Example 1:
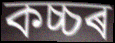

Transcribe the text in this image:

কচ্চৰ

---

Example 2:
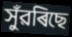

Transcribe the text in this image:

সুঁৱৰিছে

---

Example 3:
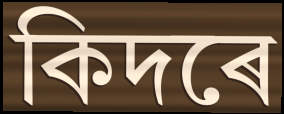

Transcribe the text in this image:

কিদৰে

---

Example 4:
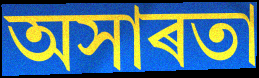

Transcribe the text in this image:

অসাৰতা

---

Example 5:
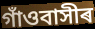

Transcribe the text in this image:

গাঁওবাসীৰ